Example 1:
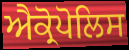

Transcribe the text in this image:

ਐਕ੍ਰੋਪੋਲਿਸ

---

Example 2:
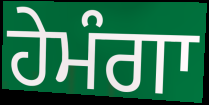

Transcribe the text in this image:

ਹੇਮੰਗਾ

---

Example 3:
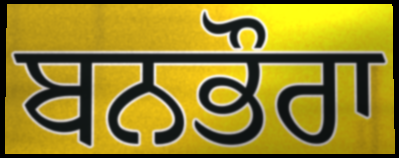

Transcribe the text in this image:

ਬਨਭੌਰਾ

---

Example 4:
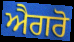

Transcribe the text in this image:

ਐਗਰੋ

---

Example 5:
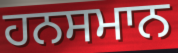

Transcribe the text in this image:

ਹਨਸਮਾਨ